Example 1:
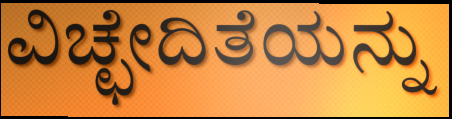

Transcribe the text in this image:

ವಿಚ್ಛೇದಿತೆಯನ್ನು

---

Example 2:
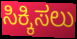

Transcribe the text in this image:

ಸಿಕ್ಕಿಸಲು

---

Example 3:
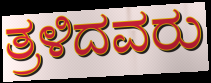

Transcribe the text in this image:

ತ್ರಳಿದವರು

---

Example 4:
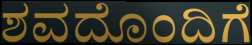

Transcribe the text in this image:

ಶವದೊಂದಿಗೆ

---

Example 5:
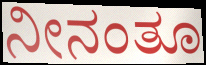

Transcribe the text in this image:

ನೀನಂತೂ